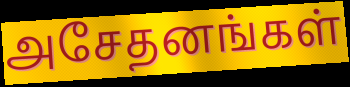
அசேதனங்கள்